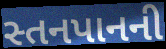
સ્તનપાનની